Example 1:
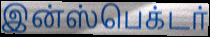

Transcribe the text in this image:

இன்ஸ்பெக்டர்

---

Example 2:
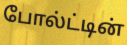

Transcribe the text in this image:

போல்ட்டின்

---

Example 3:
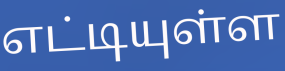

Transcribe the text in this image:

எட்டியுள்ள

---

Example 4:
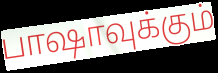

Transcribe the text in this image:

பாஷாவுக்கும்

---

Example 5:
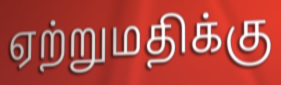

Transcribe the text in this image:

ஏற்றுமதிக்கு